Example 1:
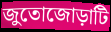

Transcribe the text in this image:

জুতোজোড়াটি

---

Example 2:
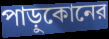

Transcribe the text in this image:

পাড়ুকোনের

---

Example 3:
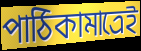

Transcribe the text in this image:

পাঠিকামাত্রেই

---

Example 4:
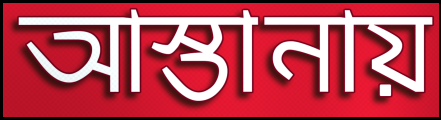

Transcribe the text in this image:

আস্তানায়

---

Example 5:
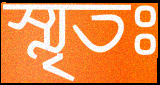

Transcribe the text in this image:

স্মৃতঃ